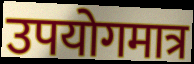
उपयोगमात्र